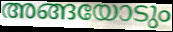
അങ്ങയോടും